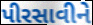
પીરસાવીને